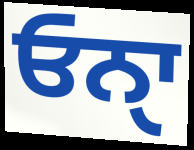
ਓਨਾੑ